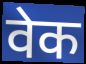
वेक